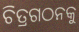
ଚିତ୍ରଗଠନକୁ